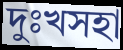
দুঃখসহা